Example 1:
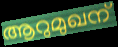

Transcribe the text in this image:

ആറുമുഖന്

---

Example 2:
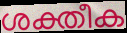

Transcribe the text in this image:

ശക്തീക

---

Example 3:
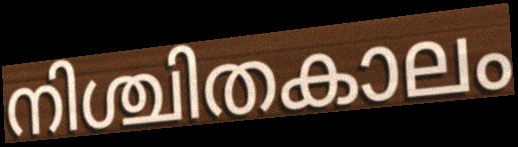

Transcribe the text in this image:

നിശ്ചിതകാലം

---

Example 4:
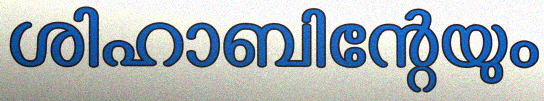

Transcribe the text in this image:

ശിഹാബിന്റേയും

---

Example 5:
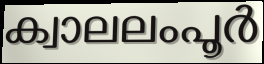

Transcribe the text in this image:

ക്വാലലംപൂർ